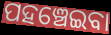
ପହଞ୍ଚେଇବା